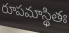
రూపమాస్థితః